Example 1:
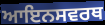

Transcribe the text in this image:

ਆਇਨਸਵਰਥ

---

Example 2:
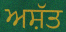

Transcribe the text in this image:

ਅਸ਼ੱਤ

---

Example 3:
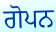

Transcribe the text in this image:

ਗੋਪਨ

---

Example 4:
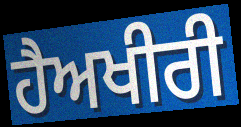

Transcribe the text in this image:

ਹੈਅਖੀਰੀ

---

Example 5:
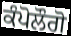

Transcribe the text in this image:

ਕੰਪੋਲੌਗੋ